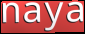
naya